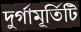
দুর্গামূর্তিটি